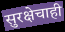
सुरक्षेचाही